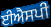
ਈਐਸਪੀ